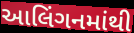
આલિંગનમાંથી